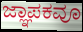
ಜ್ಞಾಪಕವೂ